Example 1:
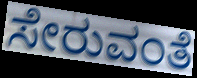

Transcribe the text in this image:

ಸೇರುವಂತೆ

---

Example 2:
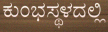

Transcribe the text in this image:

ಕುಂಭಸ್ಥಳದಲ್ಲಿ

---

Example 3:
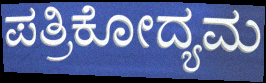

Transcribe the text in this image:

ಪತ್ರಿಕೋದ್ಯಮ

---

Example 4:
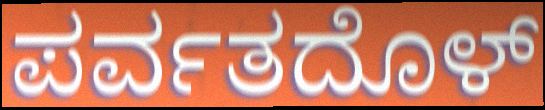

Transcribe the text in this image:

ಪರ್ವತದೊಳ್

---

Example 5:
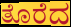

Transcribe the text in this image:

ತೊರೆದ